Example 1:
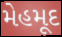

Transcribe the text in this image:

મેહમૂદ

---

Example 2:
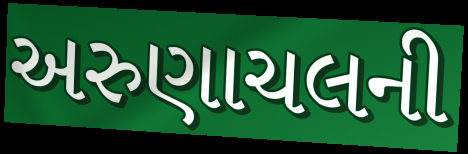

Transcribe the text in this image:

અરુણાચલની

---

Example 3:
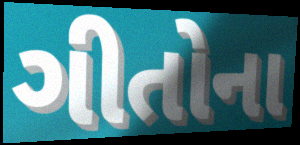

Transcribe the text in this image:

ગીતોના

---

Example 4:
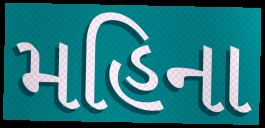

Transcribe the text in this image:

મહિના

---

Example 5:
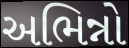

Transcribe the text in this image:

અભિન્નો